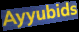
Ayyubids